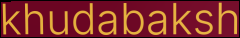
khudabaksh